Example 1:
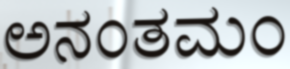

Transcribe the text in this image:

ಅನಂತಮಂ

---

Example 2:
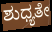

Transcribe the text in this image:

ಶುಧ್ಯತೇ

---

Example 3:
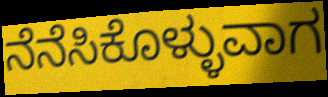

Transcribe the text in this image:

ನೆನೆಸಿಕೊಳ್ಳುವಾಗ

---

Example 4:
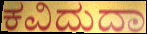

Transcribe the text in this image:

ಕವಿದುದಾ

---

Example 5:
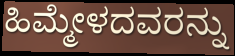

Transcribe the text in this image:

ಹಿಮ್ಮೇಳದವರನ್ನು